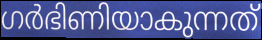
ഗർഭിണിയാകുന്നത്